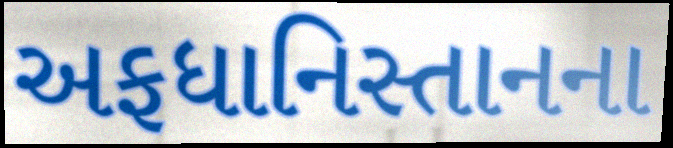
અફધાનિસ્તાનના